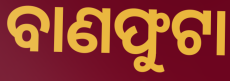
ବାଣଫୁଟା